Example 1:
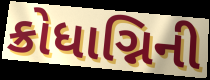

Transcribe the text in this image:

ક્રોધાગ્નિની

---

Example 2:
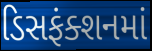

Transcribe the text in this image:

ડિસફંક્શનમાં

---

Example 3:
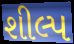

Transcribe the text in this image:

શીલ્પ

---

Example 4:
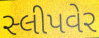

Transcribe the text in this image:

સ્લીપવેર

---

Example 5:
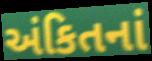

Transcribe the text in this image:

અંકિતનાં